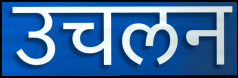
उचलन